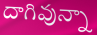
దాగివున్నా